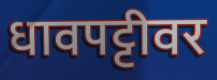
धावपट्टीवर